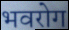
भवरोग